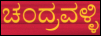
ಚಂದ್ರವಳ್ಳಿ